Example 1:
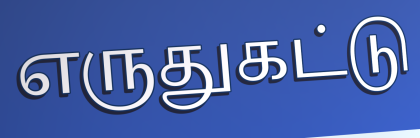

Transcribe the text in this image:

எருதுகட்டு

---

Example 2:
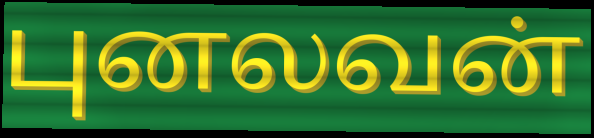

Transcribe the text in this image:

புனலவன்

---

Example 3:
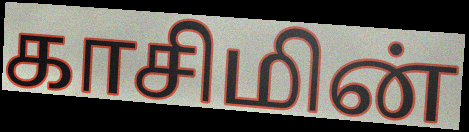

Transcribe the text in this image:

காசிமின்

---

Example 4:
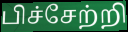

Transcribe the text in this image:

பிச்சேற்றி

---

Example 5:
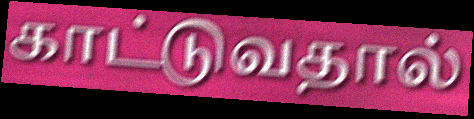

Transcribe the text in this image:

காட்டுவதால்